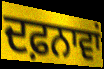
ਦਫ਼ਨਾਵਾਂ